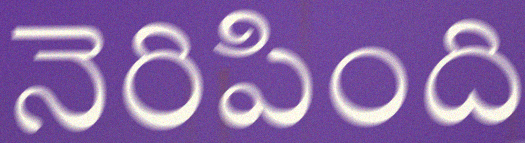
నెరిపింది